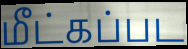
மீட்கப்பட